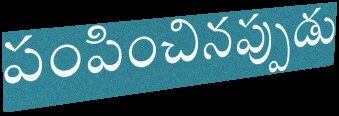
పంపించినప్పుడు